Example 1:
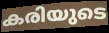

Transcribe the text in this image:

കരിയുടെ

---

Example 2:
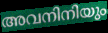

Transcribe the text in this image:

അവനിനിയും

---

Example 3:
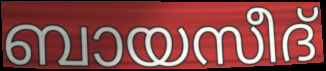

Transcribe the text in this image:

ബായസീദ്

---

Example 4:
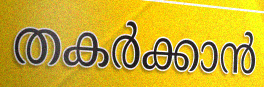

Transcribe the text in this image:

തകർക്കാൻ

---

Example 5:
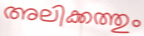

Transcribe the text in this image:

അലിക്കത്തും